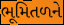
ભૂમિતળને